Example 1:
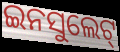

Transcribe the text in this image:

ଇନସୁଲେଟ୍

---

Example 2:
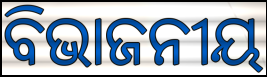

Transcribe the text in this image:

ବିଭାଜନୀୟ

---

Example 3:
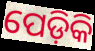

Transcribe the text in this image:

ପେଡ଼ିକି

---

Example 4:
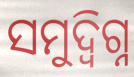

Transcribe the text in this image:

ସମୁଦ୍ବିଗ୍ନ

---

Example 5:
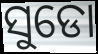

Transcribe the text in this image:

ସୁଡୋ